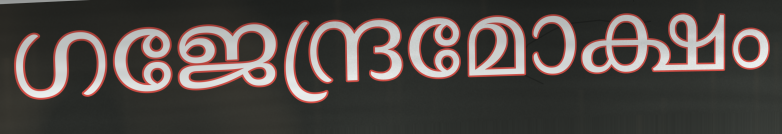
ഗജേന്ദ്രമോക്ഷം